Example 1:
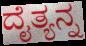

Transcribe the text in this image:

ದೈತ್ಯನ್ನ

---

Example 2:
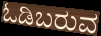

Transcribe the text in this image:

ಓಡಿಬರುವ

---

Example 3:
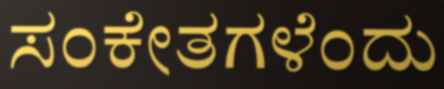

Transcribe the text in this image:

ಸಂಕೇತಗಳೆಂದು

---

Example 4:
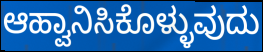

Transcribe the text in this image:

ಆಹ್ವಾನಿಸಿಕೊಳ್ಳುವುದು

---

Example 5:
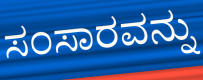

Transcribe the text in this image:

ಸಂಸಾರವನ್ನು